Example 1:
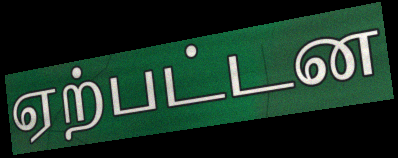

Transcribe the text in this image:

ஏற்பட்டன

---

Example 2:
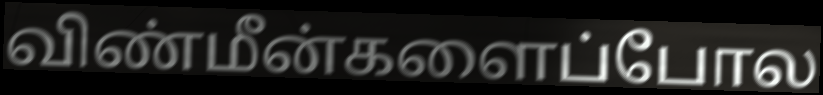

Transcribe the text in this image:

விண்மீன்களைப்போல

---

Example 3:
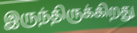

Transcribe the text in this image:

இருந்திருக்கிறது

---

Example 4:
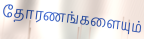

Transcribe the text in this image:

தோரணங்களையும்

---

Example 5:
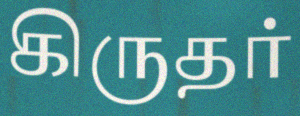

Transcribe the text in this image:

கிருதர்